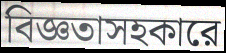
বিজ্ঞতাসহকারে